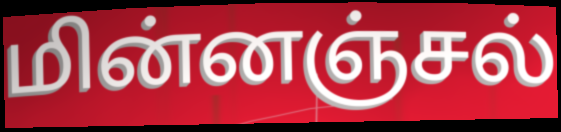
மின்னஞ்சல்